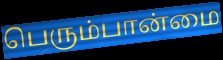
பெரும்பான்மை